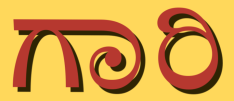
ಗಾರಿ